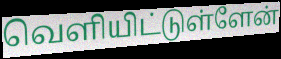
வெளியிட்டுள்ளேன்